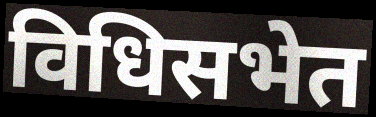
विधिसभेत